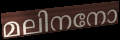
മലിനനോ